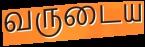
வருடைய